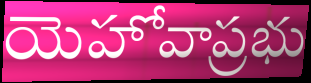
యెహోవాప్రభు